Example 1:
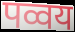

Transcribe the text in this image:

पव्वय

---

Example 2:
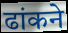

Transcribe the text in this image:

ढांकने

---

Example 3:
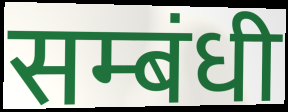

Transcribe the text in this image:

सम्बंधी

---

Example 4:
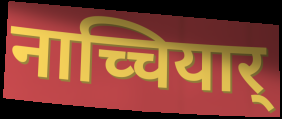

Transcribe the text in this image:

नाच्चियार्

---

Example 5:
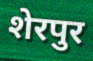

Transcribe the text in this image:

शेरपुर